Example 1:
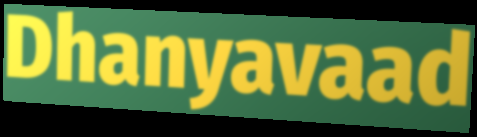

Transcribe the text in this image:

Dhanyavaad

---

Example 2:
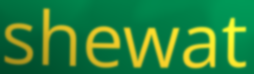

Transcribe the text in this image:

shewat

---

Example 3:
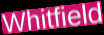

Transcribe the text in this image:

Whitfield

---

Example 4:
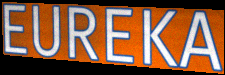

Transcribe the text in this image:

EUREKA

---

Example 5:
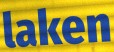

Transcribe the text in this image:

laken